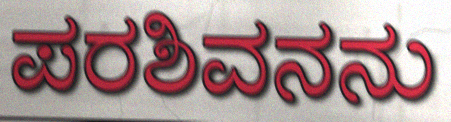
ಪರಶಿವನನು